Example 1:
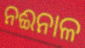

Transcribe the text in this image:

ନଈନାଳ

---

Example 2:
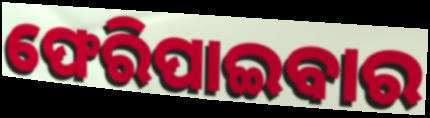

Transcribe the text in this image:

ଫେରିପାଇବାର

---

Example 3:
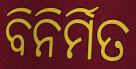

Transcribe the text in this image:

ବିନିର୍ମିତ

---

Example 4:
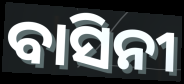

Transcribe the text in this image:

ବାସିନୀ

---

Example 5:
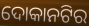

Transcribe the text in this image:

ଦୋକାନଟିର